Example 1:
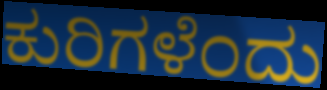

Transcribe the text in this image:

ಕುರಿಗಳೆಂದು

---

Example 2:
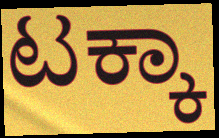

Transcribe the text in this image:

ಟಕ್ಕಾ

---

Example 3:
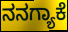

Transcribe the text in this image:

ನನಗ್ಯಾಕೆ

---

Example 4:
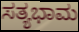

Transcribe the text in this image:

ಸತ್ಯಭಾಮ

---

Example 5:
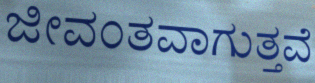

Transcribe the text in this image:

ಜೀವಂತವಾಗುತ್ತವೆ